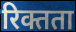
रिक्तता